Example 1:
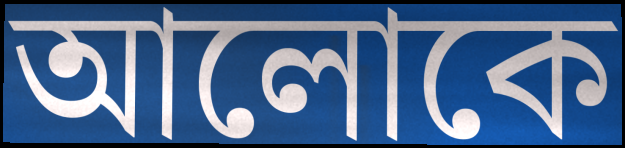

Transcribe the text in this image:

আলোকে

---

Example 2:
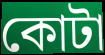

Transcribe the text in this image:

কোটা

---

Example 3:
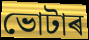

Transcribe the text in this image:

ভোটাৰ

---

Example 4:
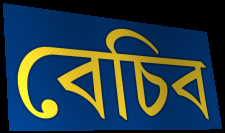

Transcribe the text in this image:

বেচিব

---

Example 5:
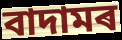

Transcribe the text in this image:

বাদামৰ